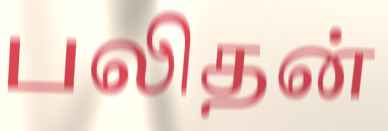
பலிதன்